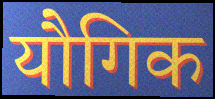
यौगिक